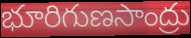
భూరిగుణసాంద్రు